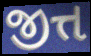
જીત્ત